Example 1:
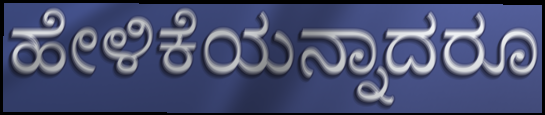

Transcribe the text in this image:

ಹೇಳಿಕೆಯನ್ನಾದರೂ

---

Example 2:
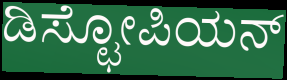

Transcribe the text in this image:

ಡಿಸ್ಟೋಪಿಯನ್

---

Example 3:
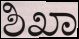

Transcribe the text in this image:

ಶಿಖಾ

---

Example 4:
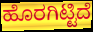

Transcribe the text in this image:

ಹೊರಗಿಟ್ಟಿದೆ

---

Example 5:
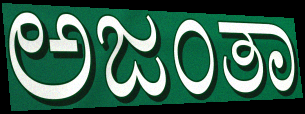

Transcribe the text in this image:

ಅಜಂತಾ